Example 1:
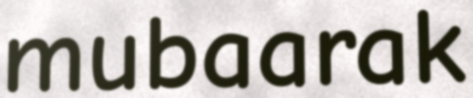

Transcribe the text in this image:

mubaarak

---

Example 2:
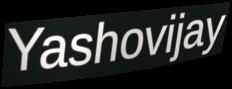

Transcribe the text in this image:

Yashovijay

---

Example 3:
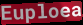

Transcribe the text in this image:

Euploea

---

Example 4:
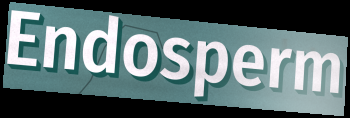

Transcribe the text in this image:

Endosperm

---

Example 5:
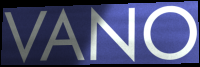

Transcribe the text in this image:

VANO